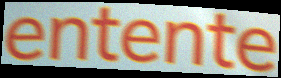
entente